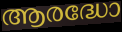
ആരദ്ധോ